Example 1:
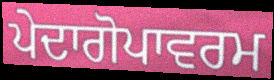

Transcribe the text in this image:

ਪੇਦਾਗੋਪਾਵਰਮ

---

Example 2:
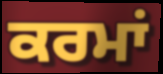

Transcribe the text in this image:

ਕਰਮਾਂ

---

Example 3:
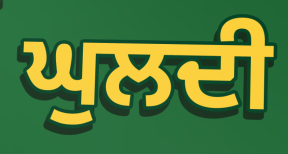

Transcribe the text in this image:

ਘੁਲਦੀ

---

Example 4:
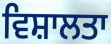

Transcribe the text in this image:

ਵਿਸ਼ਾਲਤਾ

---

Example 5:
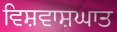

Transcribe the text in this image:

ਵਿਸ਼ਵਾਸ਼ਘਾਤ